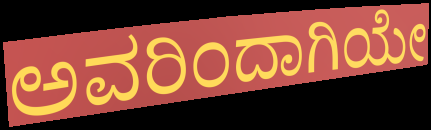
ಅವರಿಂದಾಗಿಯೇ